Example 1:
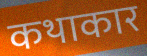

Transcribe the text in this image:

कथाकार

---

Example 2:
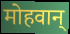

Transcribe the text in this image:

मोहवान्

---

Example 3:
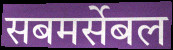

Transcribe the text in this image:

सबमर्सेबल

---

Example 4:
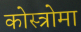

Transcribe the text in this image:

कोस्त्रोमा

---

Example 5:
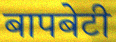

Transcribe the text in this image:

बापबेटी